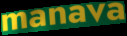
manava